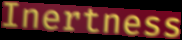
Inertness